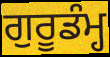
ਗੁਰੂਡੰਮ੍ਹ